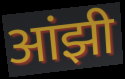
आंझी